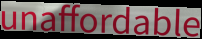
unaffordable